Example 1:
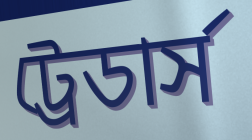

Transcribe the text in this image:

ট্রেডার্স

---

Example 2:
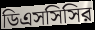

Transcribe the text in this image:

ডিএসসিসির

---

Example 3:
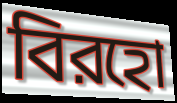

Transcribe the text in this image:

বিরহো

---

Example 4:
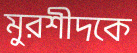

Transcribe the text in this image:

মুরশীদকে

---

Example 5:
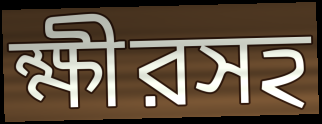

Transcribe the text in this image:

ক্ষীরসহ